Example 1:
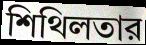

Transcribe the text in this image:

শিথিলতার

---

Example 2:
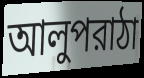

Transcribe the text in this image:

আলুপরাঠা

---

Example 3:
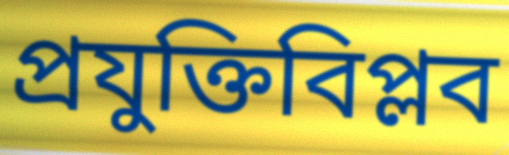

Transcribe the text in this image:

প্রযুক্তিবিপ্লব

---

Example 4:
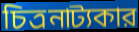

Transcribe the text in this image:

চিত্রনাট্যকার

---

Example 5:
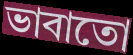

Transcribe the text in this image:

ভাবাতো